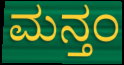
ಮನ್ತಂ